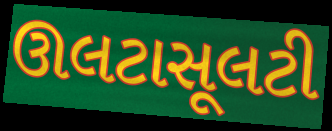
ઊલટાસૂલટી